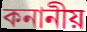
কনানীয়